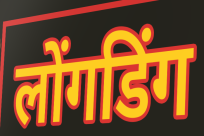
लोंगडिंग